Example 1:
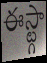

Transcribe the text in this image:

ఈస్ట్గా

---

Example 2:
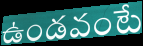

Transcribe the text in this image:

ఉండవంటే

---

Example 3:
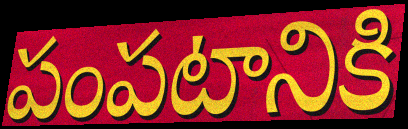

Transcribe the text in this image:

పంపటానికి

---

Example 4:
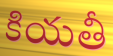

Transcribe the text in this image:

కియతీ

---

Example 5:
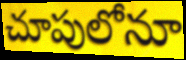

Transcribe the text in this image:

చూపులోనూ